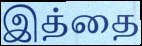
இத்தை